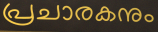
പ്രചാരകനും